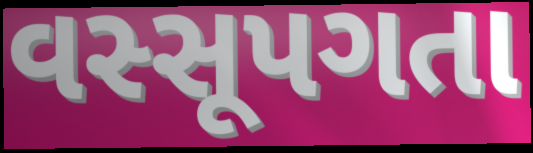
વસ્સૂપગતા